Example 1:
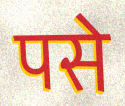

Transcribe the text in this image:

पसे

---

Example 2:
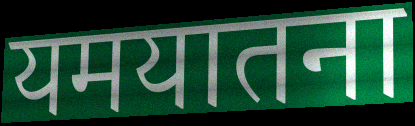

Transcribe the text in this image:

यमयातना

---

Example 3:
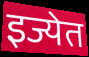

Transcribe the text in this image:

इज्येत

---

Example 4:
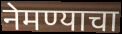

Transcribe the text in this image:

नेमण्याचा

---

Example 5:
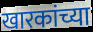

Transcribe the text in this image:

खारकांच्या